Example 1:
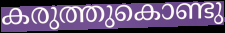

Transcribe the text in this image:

കരുത്തുകൊണ്ടു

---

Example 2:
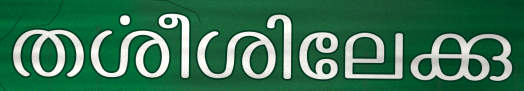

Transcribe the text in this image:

തൎശീശിലേക്കു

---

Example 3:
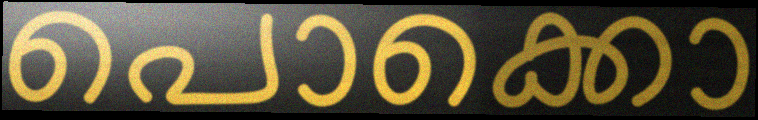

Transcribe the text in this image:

പൊക്കൊ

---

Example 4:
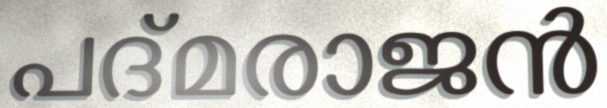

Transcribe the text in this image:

പദ്മരാജൻ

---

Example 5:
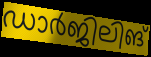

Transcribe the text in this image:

ഡാർജിലിങ്